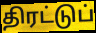
திரட்டுப்